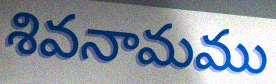
శివనామము